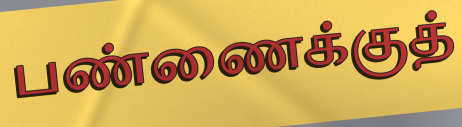
பண்ணைக்குத்